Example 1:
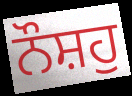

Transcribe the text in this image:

ਨੌਸ਼ਹੁ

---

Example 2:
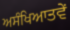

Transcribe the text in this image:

ਅਸੰਖਿਆਤਵੇਂ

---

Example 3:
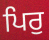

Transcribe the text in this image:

ਪਿਰੁ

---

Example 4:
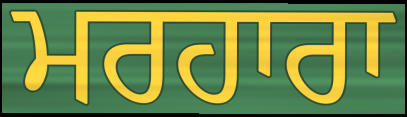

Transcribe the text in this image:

ਮਰਹਾਰਾ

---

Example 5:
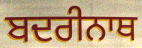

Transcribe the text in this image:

ਬਦਰੀਨਾਥ